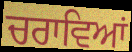
ਚਰਾਵਿਆਂ